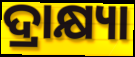
ଦ୍ରାକ୍ଷ୍ୟା